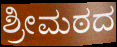
ಶ್ರೀಮಠದ